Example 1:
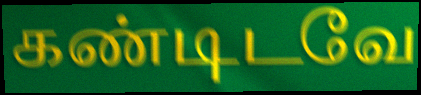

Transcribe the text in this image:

கண்டிடவே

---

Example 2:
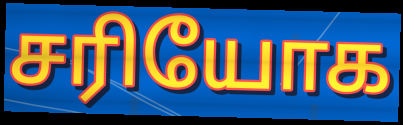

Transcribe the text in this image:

சரியோக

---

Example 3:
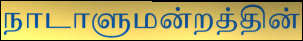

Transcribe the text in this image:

நாடாளுமன்றத்தின்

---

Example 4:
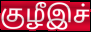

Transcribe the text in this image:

குழீஇச்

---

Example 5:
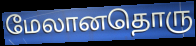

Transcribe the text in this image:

மேலானதொரு